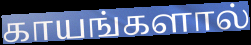
காயங்களால்